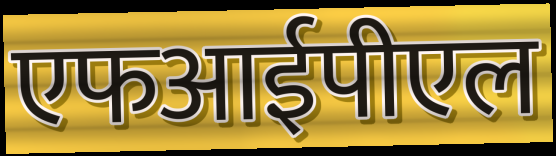
एफआईपीएल